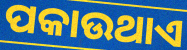
ପକାଉଥାଏ